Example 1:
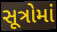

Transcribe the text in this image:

સૂત્રોમાં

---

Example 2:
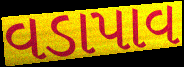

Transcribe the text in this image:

વડાપાવ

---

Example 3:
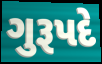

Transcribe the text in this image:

ગુરૂપદે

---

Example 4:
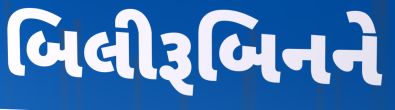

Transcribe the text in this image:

બિલીરૂબિનને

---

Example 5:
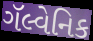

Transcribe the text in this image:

ગૅલ્વેનિક